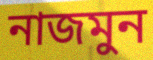
নাজমুন